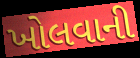
ખોલવાની